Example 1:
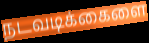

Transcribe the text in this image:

நடவடிக்கைளை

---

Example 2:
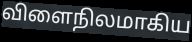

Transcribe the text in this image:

விளைநிலமாகிய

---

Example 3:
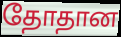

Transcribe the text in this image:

தோதான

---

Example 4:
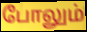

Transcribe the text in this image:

போலும்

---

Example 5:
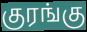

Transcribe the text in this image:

குரங்கு